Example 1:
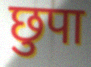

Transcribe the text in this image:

छुपा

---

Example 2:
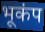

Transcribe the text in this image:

भूकंप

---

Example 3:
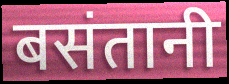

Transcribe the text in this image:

बसंतानी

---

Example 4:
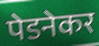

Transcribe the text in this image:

पेडनेकर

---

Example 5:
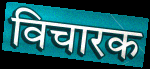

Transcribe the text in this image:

विचारक